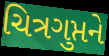
ચિત્રગુપ્તને